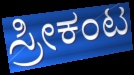
ಸ್ರೀಕಂಟ